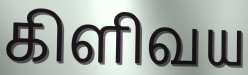
கிளிவய